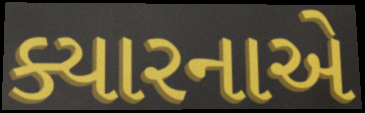
ક્યારનાએ